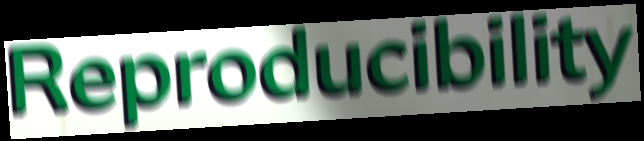
Reproducibility